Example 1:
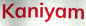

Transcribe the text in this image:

Kaniyam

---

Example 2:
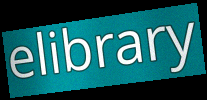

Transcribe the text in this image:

elibrary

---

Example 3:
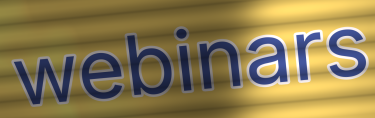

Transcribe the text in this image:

webinars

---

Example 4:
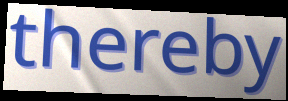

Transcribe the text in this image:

thereby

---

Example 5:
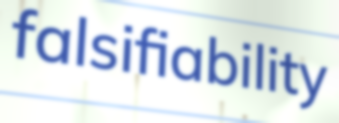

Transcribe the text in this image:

falsifiability